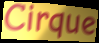
Cirque